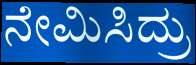
ನೇಮಿಸಿದ್ರು